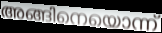
അങ്ങിനെയൊന്ന്